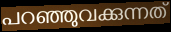
പറഞ്ഞുവക്കുന്നത്